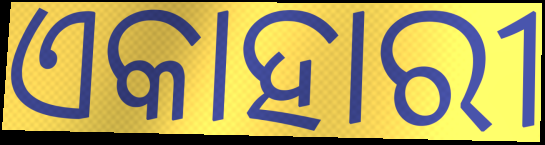
ଏକାହାରୀ